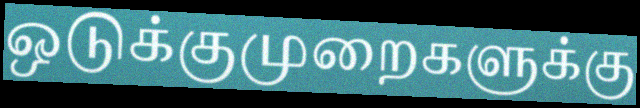
ஒடுக்குமுறைகளுக்கு